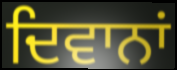
ਦਿਵਾਨਾਂ